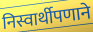
निस्वार्थीपणाने